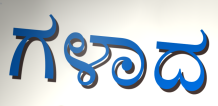
ಗಳಾದ